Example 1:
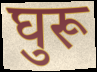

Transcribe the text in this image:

घुरू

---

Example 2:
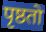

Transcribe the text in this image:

पृष्ठतो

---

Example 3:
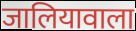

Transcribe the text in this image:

जालियावाला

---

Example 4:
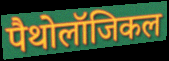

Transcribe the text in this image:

पैथोलॉजिकल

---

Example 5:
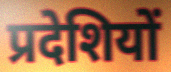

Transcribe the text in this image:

प्रदेशियों